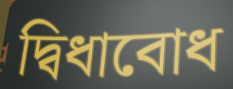
দ্বিধাবোধ